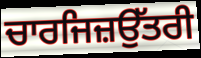
ਚਾਰਜਿਜ਼ਉੱਤਰੀ